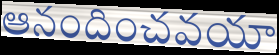
ఆనందించవయా